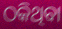
ଠକିଥିବା